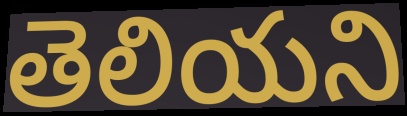
తెలియని